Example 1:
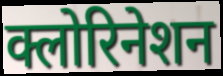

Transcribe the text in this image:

क्लोरिनेशन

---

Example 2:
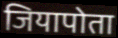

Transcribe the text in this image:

जियापोता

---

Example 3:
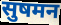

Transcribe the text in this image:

सुषमन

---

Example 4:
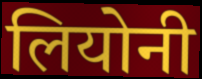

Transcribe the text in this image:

लियोनी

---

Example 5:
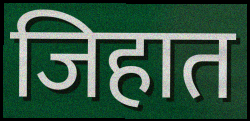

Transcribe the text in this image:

जिहात